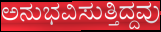
ಅನುಭವಿಸುತ್ತಿದ್ದವು